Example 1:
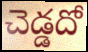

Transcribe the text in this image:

చెడ్డదో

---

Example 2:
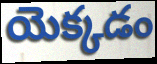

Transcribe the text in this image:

యెక్కడం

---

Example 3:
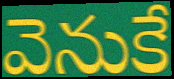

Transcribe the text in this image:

వెనుకే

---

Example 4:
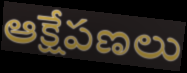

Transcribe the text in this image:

ఆక్షేపణలు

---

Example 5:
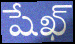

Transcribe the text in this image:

షేఖ్